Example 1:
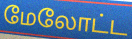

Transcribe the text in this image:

மேலோட்ட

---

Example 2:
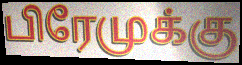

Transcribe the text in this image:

பிரேமுக்கு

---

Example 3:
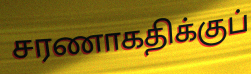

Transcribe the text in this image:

சரணாகதிக்குப்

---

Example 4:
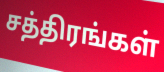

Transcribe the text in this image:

சத்திரங்கள்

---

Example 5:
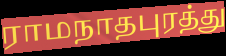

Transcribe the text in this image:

ராமநாதபுரத்து